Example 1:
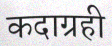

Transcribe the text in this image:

कदाग्रही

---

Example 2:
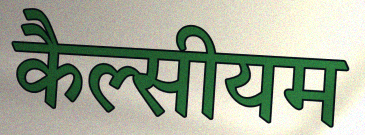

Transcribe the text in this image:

कैल्सीयम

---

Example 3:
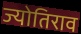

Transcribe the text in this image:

ज्योतिराव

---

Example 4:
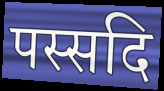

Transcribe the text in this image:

पस्सदि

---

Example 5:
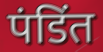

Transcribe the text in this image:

पंडिंत